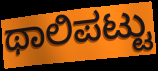
ಥಾಲಿಪಟ್ಟು